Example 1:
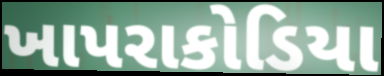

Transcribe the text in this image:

ખાપરાકોડિયા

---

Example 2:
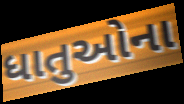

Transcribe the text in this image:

ધાતુઓના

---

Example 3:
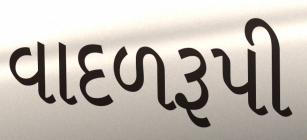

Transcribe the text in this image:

વાદળરૂપી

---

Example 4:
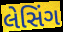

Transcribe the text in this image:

લેસિંગ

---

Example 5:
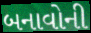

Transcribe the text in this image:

બનાવોની